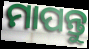
ମାପନ୍ତୁ